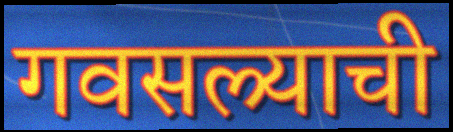
गवसल्याची